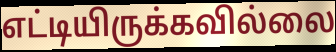
எட்டியிருக்கவில்லை